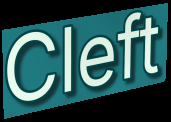
Cleft